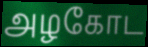
அழகோட